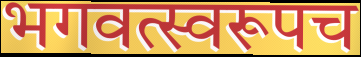
भगवत्स्वरूपच